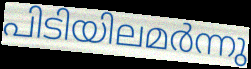
പിടിയിലമർന്നു